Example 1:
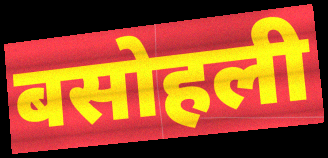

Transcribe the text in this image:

बसोहली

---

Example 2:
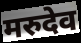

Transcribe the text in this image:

मरुदेव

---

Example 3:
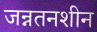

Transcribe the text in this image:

जन्नतनशीन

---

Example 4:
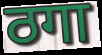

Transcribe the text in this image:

ठगा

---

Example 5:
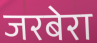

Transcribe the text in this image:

जरबेरा